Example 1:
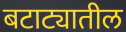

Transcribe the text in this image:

बटाट्यातील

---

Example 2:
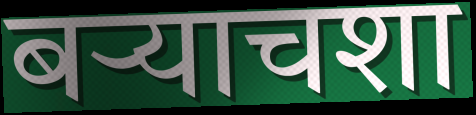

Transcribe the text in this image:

बर्‍याचशा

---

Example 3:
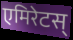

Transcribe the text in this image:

एमिरेटस्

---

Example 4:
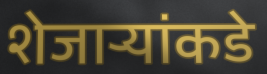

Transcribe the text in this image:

शेजाऱ्यांकडे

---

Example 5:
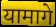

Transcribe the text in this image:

यामागे